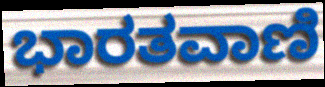
ಭಾರತವಾಣಿ